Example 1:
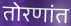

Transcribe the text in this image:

तोरणांत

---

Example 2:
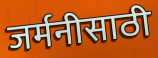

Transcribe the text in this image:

जर्मनीसाठी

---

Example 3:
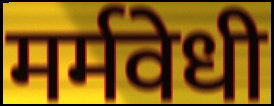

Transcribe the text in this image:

मर्मवेधी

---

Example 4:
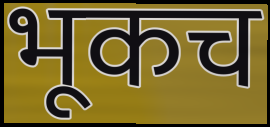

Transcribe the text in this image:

भूकच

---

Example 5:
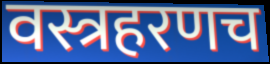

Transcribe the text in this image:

वस्त्रहरणच